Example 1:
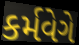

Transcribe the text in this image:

કર્મવેગે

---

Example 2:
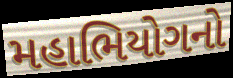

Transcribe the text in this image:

મહાભિયોગનો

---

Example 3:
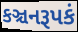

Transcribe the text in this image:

કઞ્ચનરૂપકં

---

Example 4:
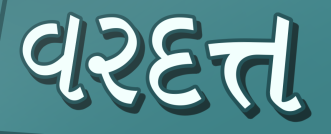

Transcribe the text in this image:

વરદત્ત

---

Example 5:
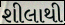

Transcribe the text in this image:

શીલાથી